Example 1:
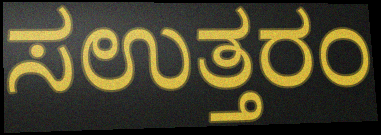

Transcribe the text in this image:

ಸಉತ್ತರಂ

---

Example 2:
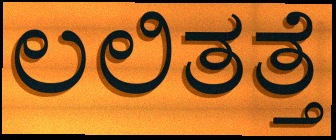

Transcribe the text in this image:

ಲಲಿತತ್ತೆ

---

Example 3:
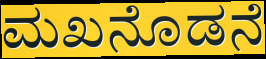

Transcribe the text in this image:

ಮಖನೊಡನೆ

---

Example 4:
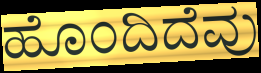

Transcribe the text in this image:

ಹೊಂದಿದೆವು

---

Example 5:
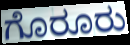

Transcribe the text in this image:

ಗೊರೂರು